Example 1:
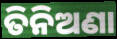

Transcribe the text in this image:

ତିନିଅଣା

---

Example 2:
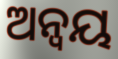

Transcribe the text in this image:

ଅନ୍ଵୟ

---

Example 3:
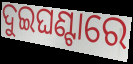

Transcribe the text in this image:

ଦୁଇଘଣ୍ଟାରେ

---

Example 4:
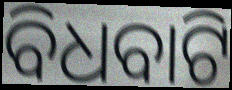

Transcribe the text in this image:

ବିଧବାଟି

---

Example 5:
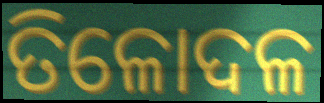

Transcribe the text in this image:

ତିଳୋଦଳ